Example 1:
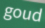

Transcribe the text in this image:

goud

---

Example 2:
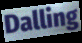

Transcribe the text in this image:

Dalling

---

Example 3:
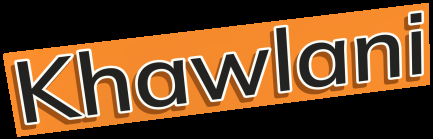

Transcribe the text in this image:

Khawlani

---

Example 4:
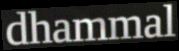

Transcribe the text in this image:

dhammal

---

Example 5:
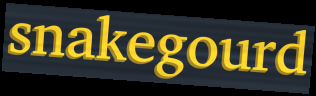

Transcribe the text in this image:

snakegourd